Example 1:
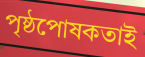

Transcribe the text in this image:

পৃষ্ঠপোষকতাই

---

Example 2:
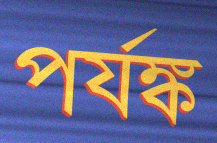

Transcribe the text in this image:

পর্যঙ্ক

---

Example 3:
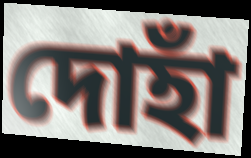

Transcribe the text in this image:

দোহাঁ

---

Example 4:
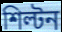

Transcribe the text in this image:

শিল্টন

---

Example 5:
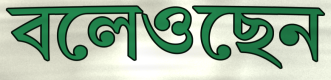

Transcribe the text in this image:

বলেওছেন